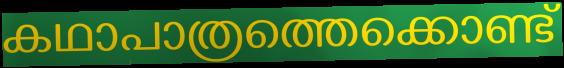
കഥാപാത്രത്തെക്കൊണ്ട്